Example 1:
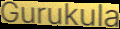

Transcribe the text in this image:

Gurukula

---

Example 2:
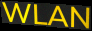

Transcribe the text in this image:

WLAN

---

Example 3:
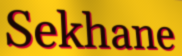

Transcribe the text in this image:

Sekhane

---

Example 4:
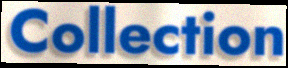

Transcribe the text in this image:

Collection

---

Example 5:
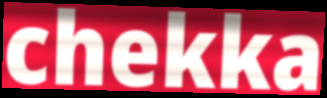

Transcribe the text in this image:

chekka